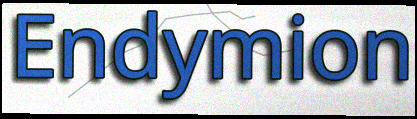
Endymion